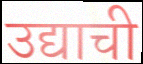
उद्याची